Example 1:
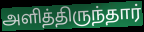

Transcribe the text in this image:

அளித்திருந்தார்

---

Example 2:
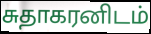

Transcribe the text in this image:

சுதாகரனிடம்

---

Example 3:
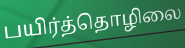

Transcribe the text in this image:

பயிர்த்தொழிலை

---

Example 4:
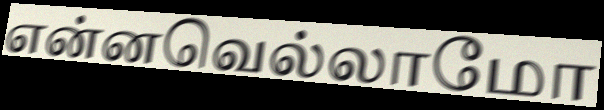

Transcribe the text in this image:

என்னவெல்லாமோ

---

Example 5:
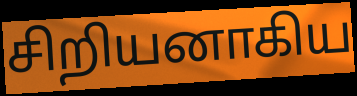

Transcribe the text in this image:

சிறியனாகிய